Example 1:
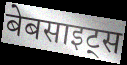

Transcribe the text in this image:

बेबसाइट्स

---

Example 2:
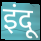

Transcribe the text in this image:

इंदू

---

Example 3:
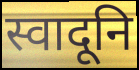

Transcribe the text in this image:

स्वादूनि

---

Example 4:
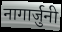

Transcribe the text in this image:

नागार्जुनी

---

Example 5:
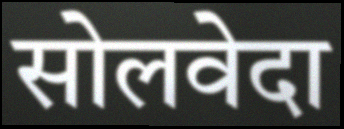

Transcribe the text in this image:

सोलवेदा